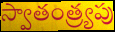
స్వాతంత్ర్యపు